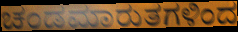
ಚಂಡಮಾರುತಗಳಿಂದ